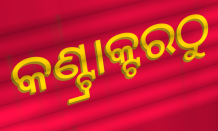
କଣ୍ଟ୍ରାକ୍ଟରଠୁ